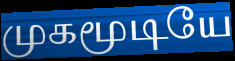
முகமூடியே